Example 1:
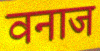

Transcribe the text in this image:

वनाज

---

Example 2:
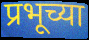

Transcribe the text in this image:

प्रभूच्या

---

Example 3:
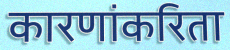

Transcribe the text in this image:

कारणांकरिता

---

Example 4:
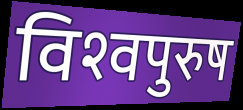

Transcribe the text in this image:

विश्वपुरुष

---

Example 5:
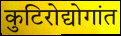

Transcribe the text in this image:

कुटिरोद्योगांत